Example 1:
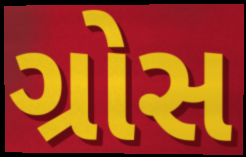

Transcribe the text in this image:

ગ્રોસ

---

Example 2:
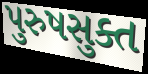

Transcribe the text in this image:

પુરુષસુક્ત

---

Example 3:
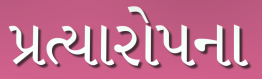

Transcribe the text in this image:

પ્રત્યારોપના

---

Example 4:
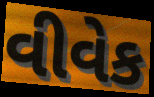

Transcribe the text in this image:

વીવેક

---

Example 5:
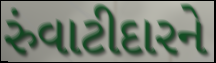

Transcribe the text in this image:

રુંવાટીદારને